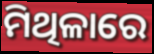
ମିଥିଳାରେ